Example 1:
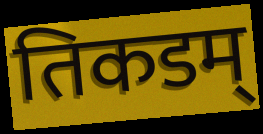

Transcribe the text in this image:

तिकडम्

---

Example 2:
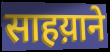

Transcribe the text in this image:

साहय़ाने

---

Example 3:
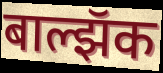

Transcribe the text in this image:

बाल्झॅक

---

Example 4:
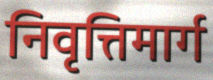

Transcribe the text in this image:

निवृत्तिमार्ग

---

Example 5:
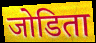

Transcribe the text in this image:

जोडिता